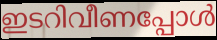
ഇടറിവീണപ്പോൾ